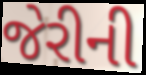
જેરીની